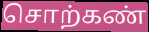
சொற்கண்